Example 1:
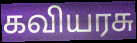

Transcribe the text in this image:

கவியரசு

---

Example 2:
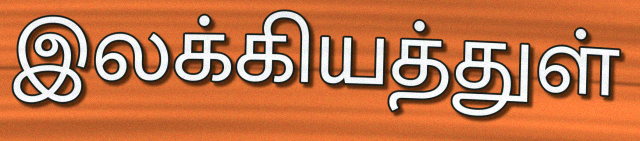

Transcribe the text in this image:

இலக்கியத்துள்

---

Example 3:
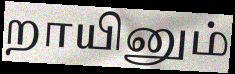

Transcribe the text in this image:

றாயினும்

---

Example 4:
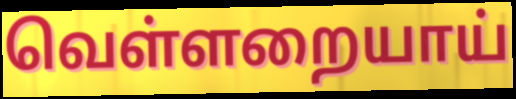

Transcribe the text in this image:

வெள்ளறையாய்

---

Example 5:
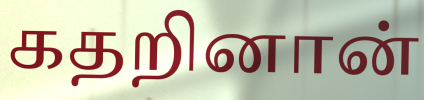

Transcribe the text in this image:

கதறினான்